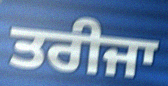
ਤਰੀਜਾ